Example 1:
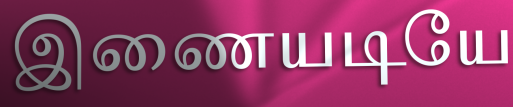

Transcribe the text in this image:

இணையடியே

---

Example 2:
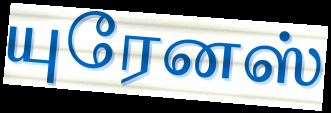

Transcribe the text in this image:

யுரேனஸ்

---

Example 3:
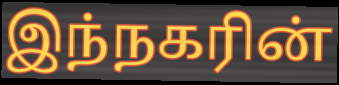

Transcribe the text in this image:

இந்நகரின்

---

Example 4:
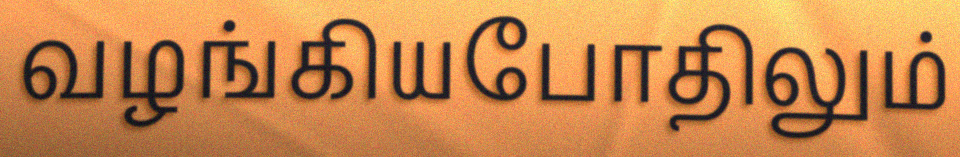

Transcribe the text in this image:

வழங்கியபோதிலும்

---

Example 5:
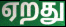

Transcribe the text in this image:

ஏறது